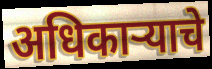
अधिकाऱ्याचे